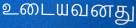
உடையவனது